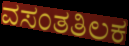
ವಸಂತತಿಲಕ